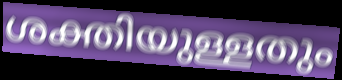
ശക്തിയുള്ളതും